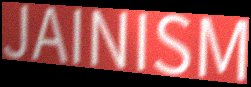
JAINISM